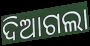
ଦିଆଗଲା